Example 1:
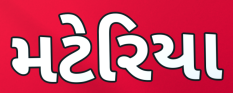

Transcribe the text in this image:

મટેરિયા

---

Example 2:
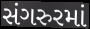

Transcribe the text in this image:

સંગરુરમાં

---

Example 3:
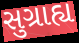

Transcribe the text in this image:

સુગ્રાહ્ય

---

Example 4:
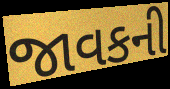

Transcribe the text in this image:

જાવકની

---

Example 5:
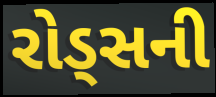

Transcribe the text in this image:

રોડ્સની